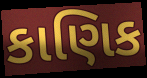
કાણિક